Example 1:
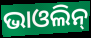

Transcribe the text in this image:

ଭାଓଲିନ୍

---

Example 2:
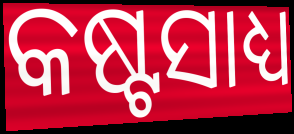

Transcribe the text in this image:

କଷ୍ଟସାଧ୍ଯ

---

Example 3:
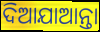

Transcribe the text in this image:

ଦିଆଯାଆନ୍ତା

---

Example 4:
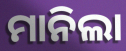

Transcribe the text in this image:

ମାନିଲା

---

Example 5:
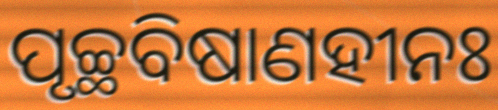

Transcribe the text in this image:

ପୃଚ୍ଛବିଷାଣହୀନଃ